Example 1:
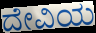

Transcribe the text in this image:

ದೇವಿಯ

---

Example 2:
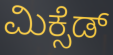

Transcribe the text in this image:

ಮಿಕ್ಸೆಡ್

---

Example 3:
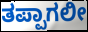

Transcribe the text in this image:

ತಪ್ಪಾಗಲೀ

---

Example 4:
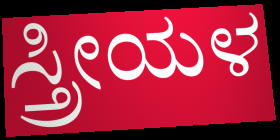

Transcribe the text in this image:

ಸ್ತ್ರೀಯಳ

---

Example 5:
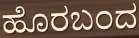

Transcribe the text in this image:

ಹೊರಬಂದ